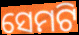
ସେମଟି